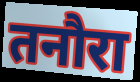
तनौरा